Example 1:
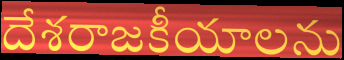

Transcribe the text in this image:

దేశరాజకీయాలను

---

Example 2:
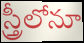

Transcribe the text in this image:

స్త్రీలోనూ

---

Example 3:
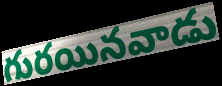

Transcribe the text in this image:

గురయినవాడు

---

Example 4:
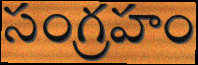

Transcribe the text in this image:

సంగ్రహం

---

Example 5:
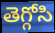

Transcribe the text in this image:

తెగ్గోసి